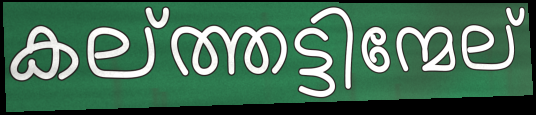
കല്ത്തട്ടിന്മേല്